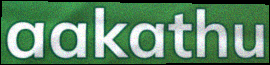
aakathu